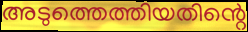
അടുത്തെത്തിയതിന്റെ